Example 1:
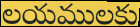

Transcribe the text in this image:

లయములకు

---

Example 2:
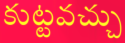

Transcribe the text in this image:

కుట్టవచ్చు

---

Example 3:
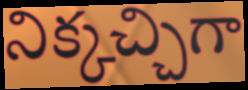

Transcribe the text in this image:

నిక్కచ్చిగా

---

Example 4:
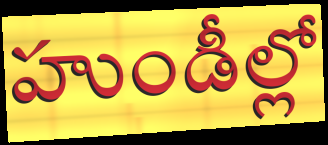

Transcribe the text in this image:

హుండీల్లో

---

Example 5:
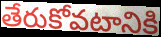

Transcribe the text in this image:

తేరుకోవటానికి